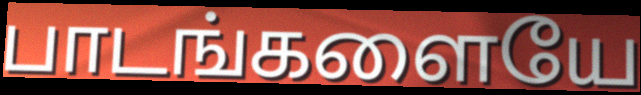
பாடங்களையே